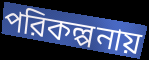
পরিকল্পনায়